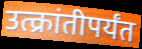
उत्क्रांतीपर्यंत